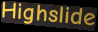
Highslide